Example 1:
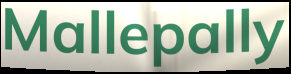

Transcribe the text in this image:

Mallepally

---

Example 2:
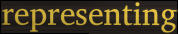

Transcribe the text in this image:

representing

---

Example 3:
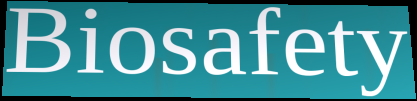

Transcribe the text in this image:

Biosafety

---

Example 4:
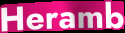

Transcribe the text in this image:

Heramb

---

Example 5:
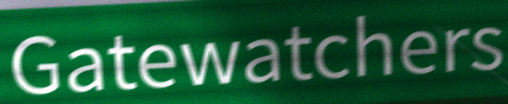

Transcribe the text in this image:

Gatewatchers